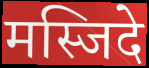
मस्जिदे